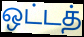
ஒட்டத்